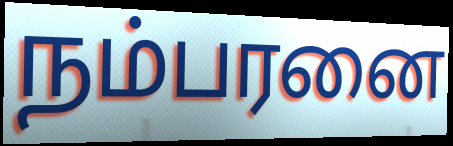
நம்பரனை